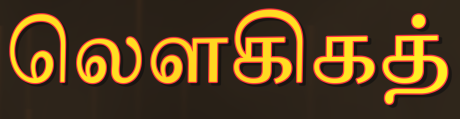
லௌகிகத்